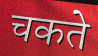
चकते